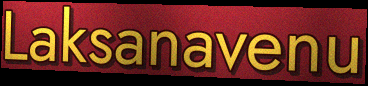
Laksanavenu